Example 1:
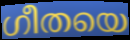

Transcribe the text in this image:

ഗീതയെ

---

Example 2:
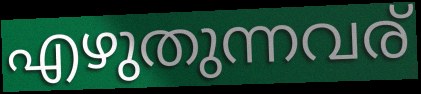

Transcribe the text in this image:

എഴുതുന്നവര്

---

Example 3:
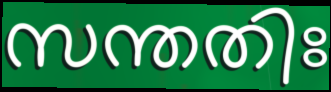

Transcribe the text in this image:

സന്തതിഃ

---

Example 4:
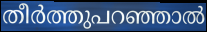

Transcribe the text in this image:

തീർത്തുപറഞ്ഞാൽ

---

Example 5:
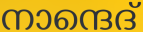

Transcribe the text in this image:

നാന്ദെദ്